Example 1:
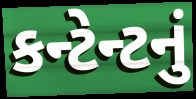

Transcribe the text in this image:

કન્ટેન્ટનું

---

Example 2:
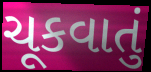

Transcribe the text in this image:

ચૂકવાતું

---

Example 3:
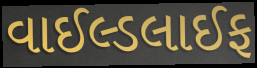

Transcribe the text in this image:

વાઈલ્ડલાઈફ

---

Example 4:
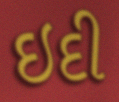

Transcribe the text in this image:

ઇદી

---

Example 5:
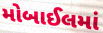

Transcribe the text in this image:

મોબાઈલમાં